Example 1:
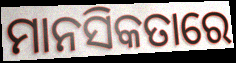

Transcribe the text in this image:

ମାନସିକତାରେ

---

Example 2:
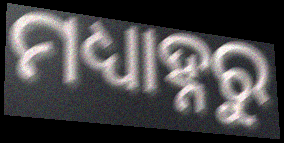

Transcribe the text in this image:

ମଧ୍ୟାହ୍ନରୁ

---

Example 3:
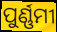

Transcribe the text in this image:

ପୁର୍ଣ୍ଣମୀ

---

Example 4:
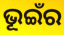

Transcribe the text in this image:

ଭୂଇଁର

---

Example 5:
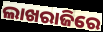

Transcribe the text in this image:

ଲାଖରାଜିରେ